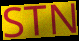
STN